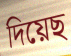
দিয়েছ